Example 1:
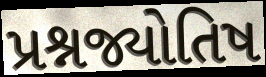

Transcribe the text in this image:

પ્રશ્નજ્યોતિષ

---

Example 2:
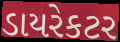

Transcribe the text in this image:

ડાયરેકટર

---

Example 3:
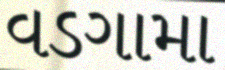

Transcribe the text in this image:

વડગામા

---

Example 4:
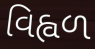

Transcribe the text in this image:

વિહ્વળ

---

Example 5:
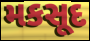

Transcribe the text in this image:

મકસૂદ